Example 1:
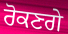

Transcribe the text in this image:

ਰੋਕਣਗੇ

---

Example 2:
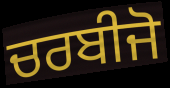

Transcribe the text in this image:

ਚਰਬੀਜੋ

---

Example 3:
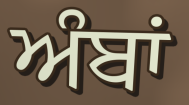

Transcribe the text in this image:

ਅੰਬਾਂ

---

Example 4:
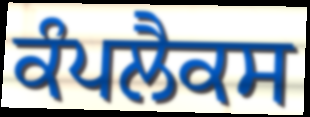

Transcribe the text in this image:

ਕੰਪਲੈਕਸ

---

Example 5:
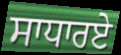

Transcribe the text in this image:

ਸਾਧਾਰਏ